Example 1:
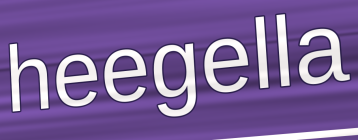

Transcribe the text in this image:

heegella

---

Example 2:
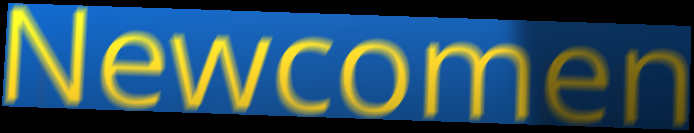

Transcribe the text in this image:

Newcomen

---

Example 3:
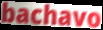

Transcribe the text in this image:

bachavo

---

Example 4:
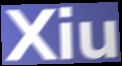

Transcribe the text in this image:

Xiu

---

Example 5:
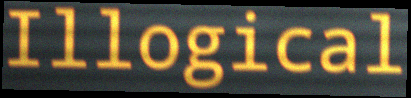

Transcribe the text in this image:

Illogical